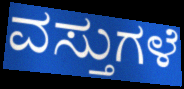
ವಸ್ತುಗಳೆ